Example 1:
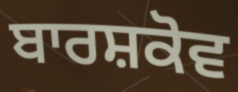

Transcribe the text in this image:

ਬਾਰਸ਼ਕੋਵ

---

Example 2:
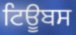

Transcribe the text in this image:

ਟਿਊਬਸ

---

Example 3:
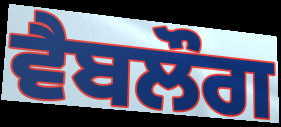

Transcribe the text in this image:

ਵੈਬਲੌਗ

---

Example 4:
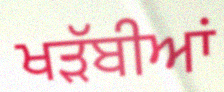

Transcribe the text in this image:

ਖੜੱਬੀਆਂ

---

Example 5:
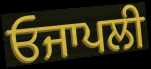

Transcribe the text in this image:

ਓਜਾਪਲੀ